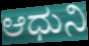
ಆಧುನಿ